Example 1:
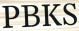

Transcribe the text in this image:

PBKS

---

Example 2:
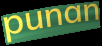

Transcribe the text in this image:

punan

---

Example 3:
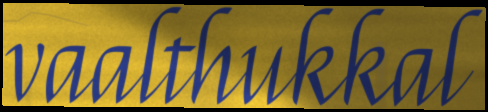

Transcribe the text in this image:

vaalthukkal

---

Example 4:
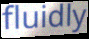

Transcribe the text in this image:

fluidly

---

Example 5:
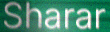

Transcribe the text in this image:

Sharar